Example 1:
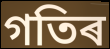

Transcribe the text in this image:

গতিৰ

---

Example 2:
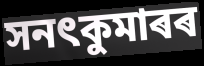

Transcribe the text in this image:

সনৎকুমাৰৰ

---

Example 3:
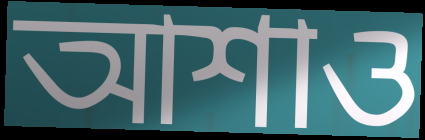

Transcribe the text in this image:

আশাও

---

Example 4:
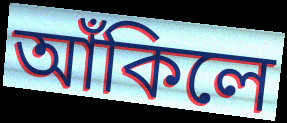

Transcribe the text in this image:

আঁকিলে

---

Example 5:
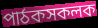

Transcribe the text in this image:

পাঠকসকলক